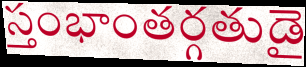
స్తంభాంతర్గతుడై